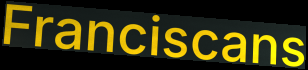
Franciscans